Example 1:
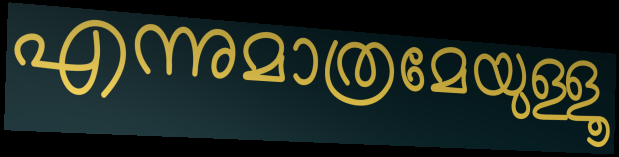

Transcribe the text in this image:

എന്നുമാത്രമേയുള്ളൂ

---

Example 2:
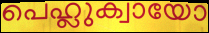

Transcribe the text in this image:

പെഹ്ലുക്വായോ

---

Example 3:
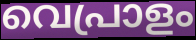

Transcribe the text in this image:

വെപ്രാളം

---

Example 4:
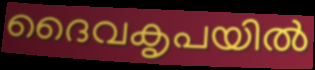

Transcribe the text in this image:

ദൈവകൃപയിൽ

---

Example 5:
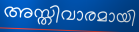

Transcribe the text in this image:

അസ്തിവാരമായി